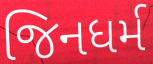
જિનધર્મ